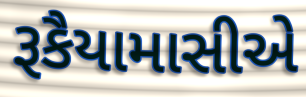
રૂકૈયામાસીએ